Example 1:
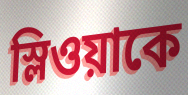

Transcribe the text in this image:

স্লিওয়াকে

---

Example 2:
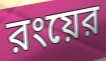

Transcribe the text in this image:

রংয়ের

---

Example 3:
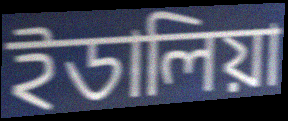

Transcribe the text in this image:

ইডালিয়া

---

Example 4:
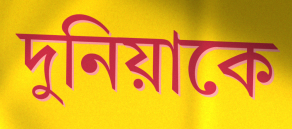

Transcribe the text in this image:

দুনিয়াকে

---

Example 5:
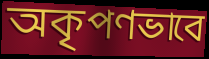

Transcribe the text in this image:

অকৃপণভাবে